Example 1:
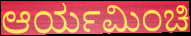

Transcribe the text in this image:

ಆರ್ಯಮಿಂಚಿ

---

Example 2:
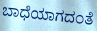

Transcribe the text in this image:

ಬಾಧೆಯಾಗದಂತೆ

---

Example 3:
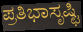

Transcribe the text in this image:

ಪ್ರತಿಭಾಸೃಷ್ಟಿ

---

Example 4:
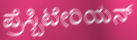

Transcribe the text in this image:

ಪ್ರೆಸ್ಬಿಟೇರಿಯನ್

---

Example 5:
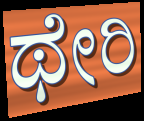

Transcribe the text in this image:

ಥೇರಿ